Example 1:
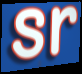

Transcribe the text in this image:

sr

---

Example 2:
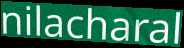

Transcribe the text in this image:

nilacharal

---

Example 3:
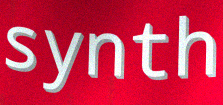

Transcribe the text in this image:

synth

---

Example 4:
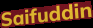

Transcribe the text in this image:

Saifuddin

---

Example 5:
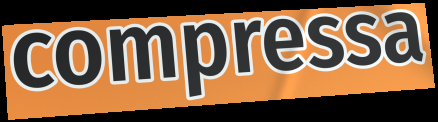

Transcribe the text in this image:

compressa